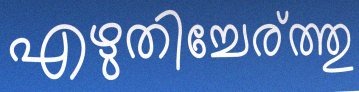
എഴുതിച്ചേര്ത്തു